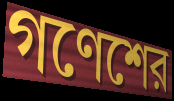
গণেশের